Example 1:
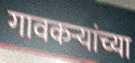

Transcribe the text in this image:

गावकर्‍यांच्या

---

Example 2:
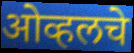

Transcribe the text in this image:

ओव्हलचे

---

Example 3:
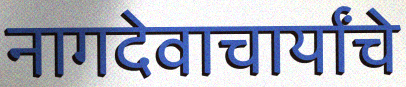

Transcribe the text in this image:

नागदेवाचार्यांचे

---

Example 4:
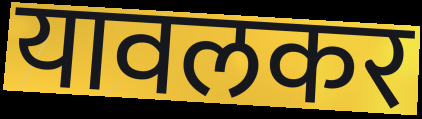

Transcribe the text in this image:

यावलकर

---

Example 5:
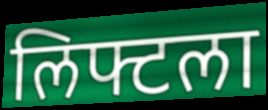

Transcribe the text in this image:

लिफ्टला